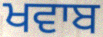
ਖਵਾਬ